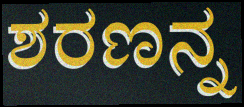
ಶರಣನ್ನ